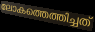
ലോകത്തെത്തിച്ചത്